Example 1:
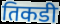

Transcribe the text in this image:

तिकडी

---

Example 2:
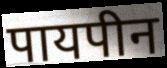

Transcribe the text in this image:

पायपीन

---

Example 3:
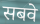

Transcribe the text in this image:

सबवे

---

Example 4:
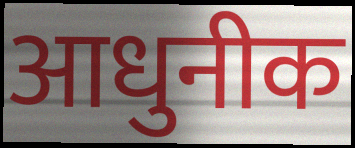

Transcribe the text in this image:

आधुनीक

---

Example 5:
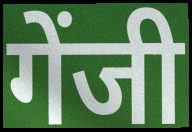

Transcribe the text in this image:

गेंजी